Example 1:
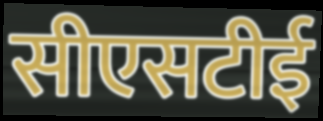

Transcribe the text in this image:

सीएसटीई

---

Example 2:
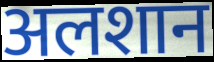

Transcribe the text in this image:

अलशान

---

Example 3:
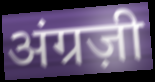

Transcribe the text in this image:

अंग्रज़ी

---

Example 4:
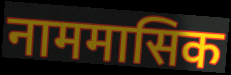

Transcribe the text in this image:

नाममासिक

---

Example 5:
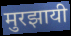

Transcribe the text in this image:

मुरझायी